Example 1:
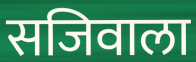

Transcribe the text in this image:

सजिवाला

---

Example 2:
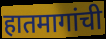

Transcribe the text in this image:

हातमागांची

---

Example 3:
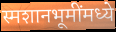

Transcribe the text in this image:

स्मशानभूमींमध्ये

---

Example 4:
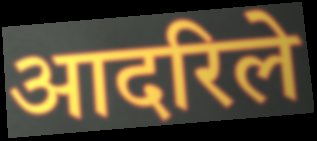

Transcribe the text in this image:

आदरिले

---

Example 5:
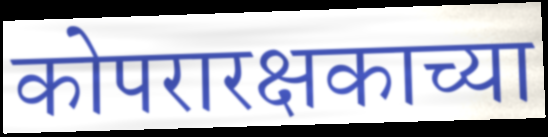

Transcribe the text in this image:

कोपरारक्षकाच्या